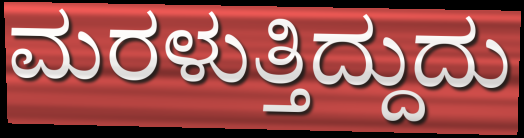
ಮರಳುತ್ತಿದ್ದುದು